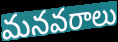
మనవరాలు